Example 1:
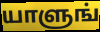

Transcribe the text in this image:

யாளுங்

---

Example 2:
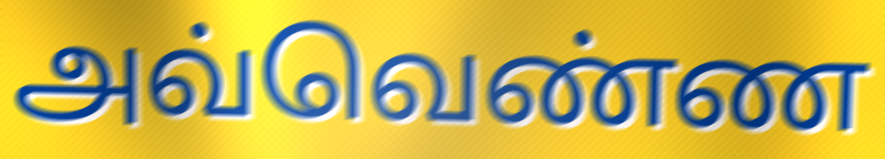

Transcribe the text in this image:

அவ்வெண்ண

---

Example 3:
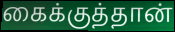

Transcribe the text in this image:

கைக்குத்தான்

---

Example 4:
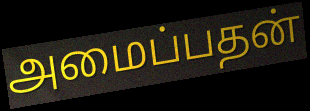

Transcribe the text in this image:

அமைப்பதன்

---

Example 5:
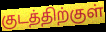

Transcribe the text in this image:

குடத்திற்குள்